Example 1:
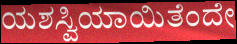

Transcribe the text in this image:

ಯಶಸ್ವಿಯಾಯಿತೆಂದೇ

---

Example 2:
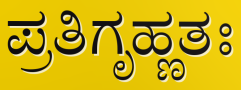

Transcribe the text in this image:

ಪ್ರತಿಗೃಹ್ಣತಃ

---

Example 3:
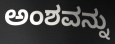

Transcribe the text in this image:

ಅಂಶವನ್ನು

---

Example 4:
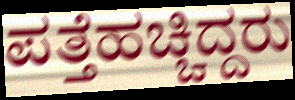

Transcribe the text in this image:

ಪತ್ತೆಹಚ್ಚಿದ್ದರು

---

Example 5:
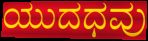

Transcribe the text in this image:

ಯುದಧವು